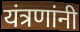
यंत्रणांनी